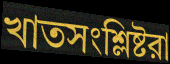
খাতসংশ্লিষ্টরা